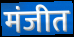
मंजीत